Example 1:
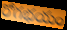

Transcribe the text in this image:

రోగభయం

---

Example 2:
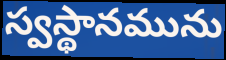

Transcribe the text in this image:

స్వస్థానమును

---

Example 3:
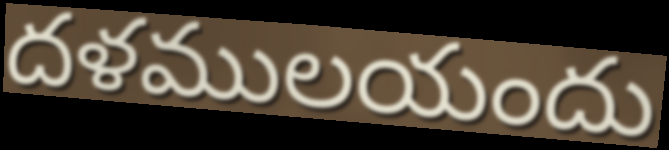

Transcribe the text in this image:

దళములయందు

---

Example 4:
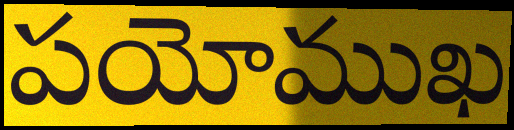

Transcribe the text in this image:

పయోముఖ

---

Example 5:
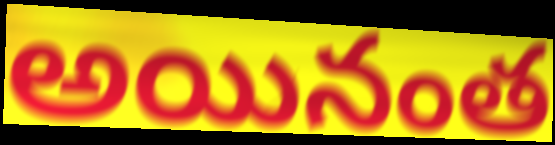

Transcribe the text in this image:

అయినంత